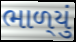
ભાળ્‌યું